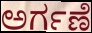
ಅರ್ಗಣೆ